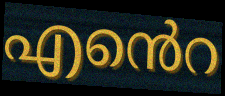
എൻെറ